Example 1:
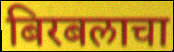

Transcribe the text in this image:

बिरबलाचा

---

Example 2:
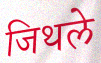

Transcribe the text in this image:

जिथले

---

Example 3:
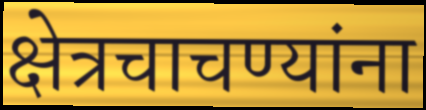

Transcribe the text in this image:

क्षेत्रचाचण्यांना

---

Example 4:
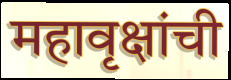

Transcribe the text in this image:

महावृक्षांची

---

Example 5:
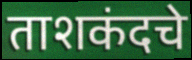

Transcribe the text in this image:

ताशकंदचे